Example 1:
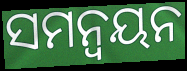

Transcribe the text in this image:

ସମନ୍ୱୟନ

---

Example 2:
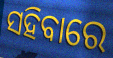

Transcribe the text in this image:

ସହିବାରେ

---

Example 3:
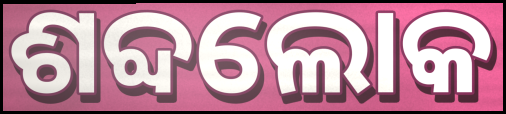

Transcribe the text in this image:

ଶବ୍ଦଲୋକ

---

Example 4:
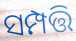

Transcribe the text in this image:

ସମ୍ପତ୍ତି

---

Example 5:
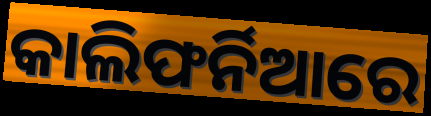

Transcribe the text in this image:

କାଲିଫର୍ନିଆରେ